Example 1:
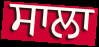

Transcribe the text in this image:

ਸਾਲਾ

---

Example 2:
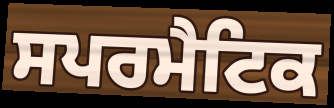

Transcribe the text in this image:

ਸਪਰਮੈਟਿਕ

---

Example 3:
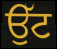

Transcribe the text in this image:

ਉੱਟ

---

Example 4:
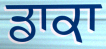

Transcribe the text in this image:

ਡਾਕਾ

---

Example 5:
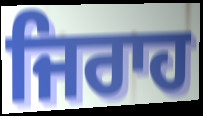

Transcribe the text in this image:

ਜਿਰਾਹ